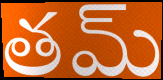
తమ్